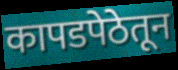
कापडपेठेतून